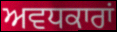
ਅਵਧਕਾਰਾਂ